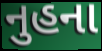
નુહના